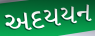
અદયયન